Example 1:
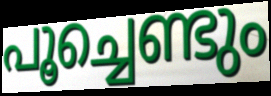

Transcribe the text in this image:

പൂച്ചെണ്ടും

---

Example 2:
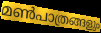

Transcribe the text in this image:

മൺപാത്രങ്ങളും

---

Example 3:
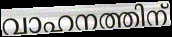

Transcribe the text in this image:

വാഹനത്തിന്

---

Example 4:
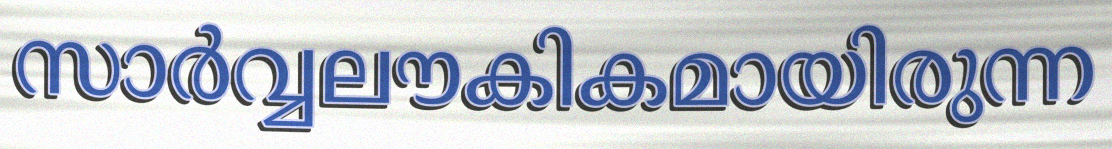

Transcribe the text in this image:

സാർവ്വലൗകികമായിരുന്ന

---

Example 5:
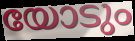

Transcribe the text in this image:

യോടും